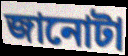
জানোটা